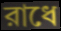
রাধে